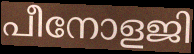
പീനോളജി